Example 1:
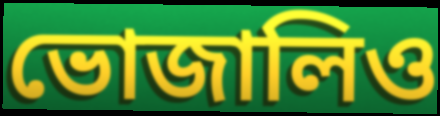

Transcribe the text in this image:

ভোজালিও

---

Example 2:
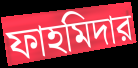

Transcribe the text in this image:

ফাহমিদার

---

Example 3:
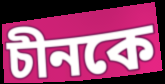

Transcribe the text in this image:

চীনকে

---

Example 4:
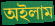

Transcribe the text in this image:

অইলাম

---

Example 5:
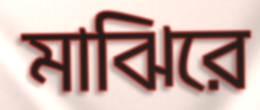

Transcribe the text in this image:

মাঝিরে